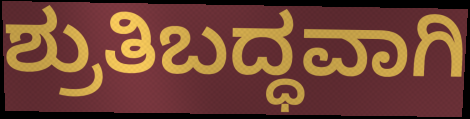
ಶ್ರುತಿಬದ್ಧವಾಗಿ